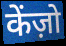
केंज़ो